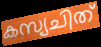
കസ്യചിത്